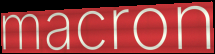
macron